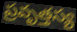
ప్రవృత్తస్య